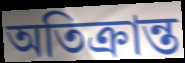
অতিক্রান্ত